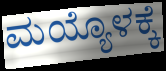
ಮಯ್ಯೊಳಕ್ಕೆ